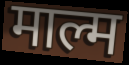
माल्म